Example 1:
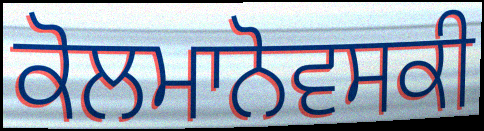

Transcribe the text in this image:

ਕੋਲਮਾਨੋਵਸਕੀ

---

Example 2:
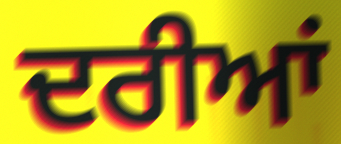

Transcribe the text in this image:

ਦਰੀਆਂ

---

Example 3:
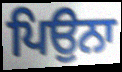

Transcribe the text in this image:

ਪਿਉਨਾ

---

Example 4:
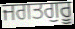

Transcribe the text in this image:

ਜਗਤਗੁਰੂ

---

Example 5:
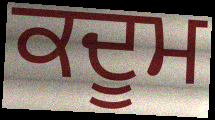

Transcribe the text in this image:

ਕਦੂਮ